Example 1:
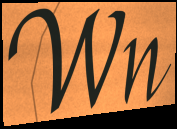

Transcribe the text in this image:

Wn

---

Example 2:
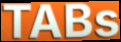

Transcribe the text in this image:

TABs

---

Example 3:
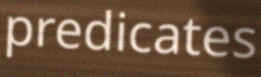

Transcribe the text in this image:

predicates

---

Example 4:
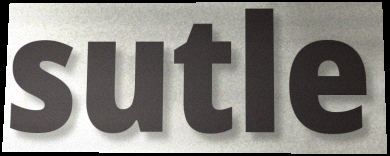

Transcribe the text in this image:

sutle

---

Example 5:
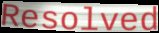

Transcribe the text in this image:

Resolved